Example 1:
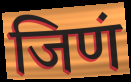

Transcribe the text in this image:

जिणं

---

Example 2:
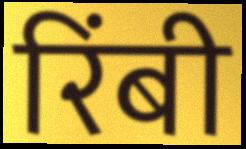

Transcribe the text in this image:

रिंबी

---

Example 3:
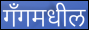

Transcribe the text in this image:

गँगमधील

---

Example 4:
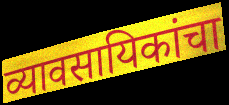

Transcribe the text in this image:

व्यावसायिकांचा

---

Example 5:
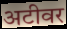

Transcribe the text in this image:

अटीवर